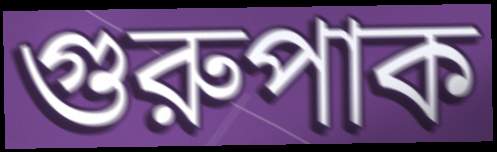
গুরুপাক